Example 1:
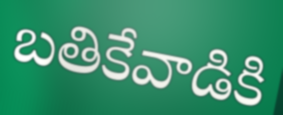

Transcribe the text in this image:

బతికేవాడికి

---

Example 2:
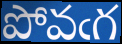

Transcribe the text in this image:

పోవఁగ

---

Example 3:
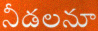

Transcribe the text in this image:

నీడలనూ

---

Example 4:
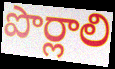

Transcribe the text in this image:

పొర్లాలి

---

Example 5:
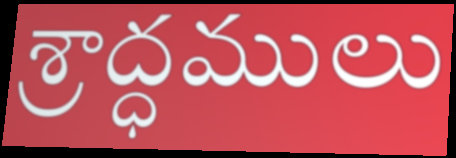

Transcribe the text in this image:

శ్రాద్ధములు